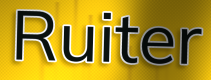
Ruiter